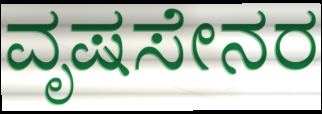
ವೃಷಸೇನರ